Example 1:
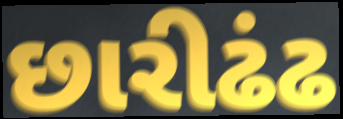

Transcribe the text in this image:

છારીઢંઢ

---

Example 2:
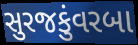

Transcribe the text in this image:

સુરજકુંવરબા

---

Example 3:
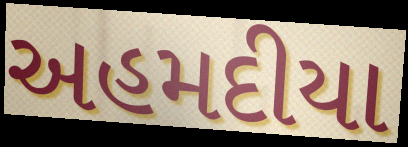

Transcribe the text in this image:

અહમદીયા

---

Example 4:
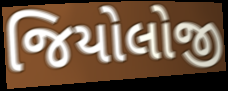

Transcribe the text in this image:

જિયોલોજી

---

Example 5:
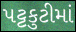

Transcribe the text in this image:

પટ્ટકુટીમાં